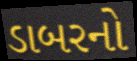
ડાબરનો